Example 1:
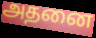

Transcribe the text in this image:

அதனை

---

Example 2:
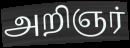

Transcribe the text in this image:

அறிஞர்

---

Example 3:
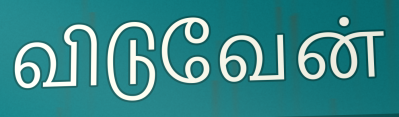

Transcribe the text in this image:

விடுவேன்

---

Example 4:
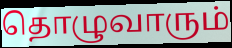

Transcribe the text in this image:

தொழுவாரும்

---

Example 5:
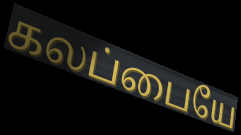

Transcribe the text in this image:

கலப்பையே